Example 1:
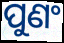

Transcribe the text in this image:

ପୁଣଂ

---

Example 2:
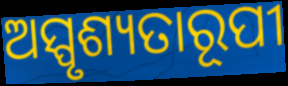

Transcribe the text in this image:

ଅସ୍ପୃଶ୍ୟତାରୂପୀ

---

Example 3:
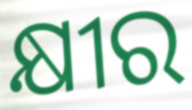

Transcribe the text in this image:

କ୍ଷୀର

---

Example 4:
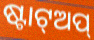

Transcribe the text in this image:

ଷ୍ଟାଟ୍ଅପ୍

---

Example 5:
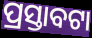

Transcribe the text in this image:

ପ୍ରସ୍ତାବଟା